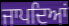
ਜਾਪਦਿਆਂ